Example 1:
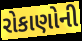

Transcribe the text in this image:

રોકાણોની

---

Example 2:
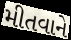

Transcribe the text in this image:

મીતવાને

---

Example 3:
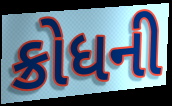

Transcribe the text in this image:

ક્રોધની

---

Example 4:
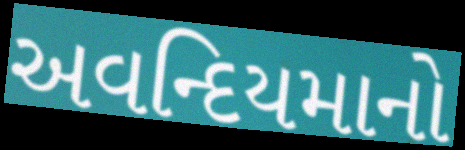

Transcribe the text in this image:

અવન્દિયમાનો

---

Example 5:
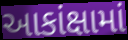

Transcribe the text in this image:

આકાંક્ષામાં